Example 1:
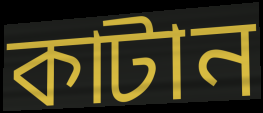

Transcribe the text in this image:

কাটান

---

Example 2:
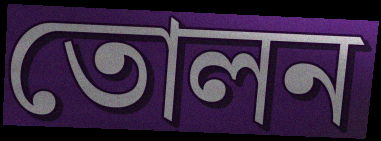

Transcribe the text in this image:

তোলন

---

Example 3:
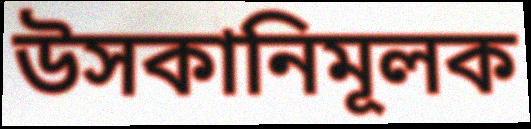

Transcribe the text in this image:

উসকানিমূলক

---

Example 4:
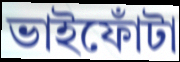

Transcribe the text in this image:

ভাইফোঁটা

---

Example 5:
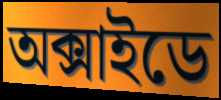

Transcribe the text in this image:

অক্সাইডে